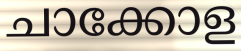
ചാക്കോള